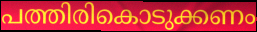
പത്തിരികൊടുക്കണം